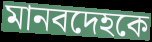
মানবদেহকে